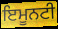
ਇਮੂਨਟੀ